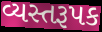
વ્યસ્તરૂપક